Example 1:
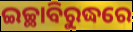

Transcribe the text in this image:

ଇଚ୍ଛାବିରୁଦ୍ଧରେ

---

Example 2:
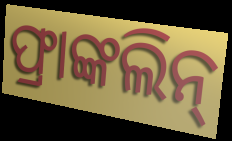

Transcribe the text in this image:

ଫ୍ରାଙ୍କଲିନ୍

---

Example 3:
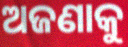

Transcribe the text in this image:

ଅଜଣାକୁ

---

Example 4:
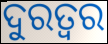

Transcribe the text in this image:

ଦୁରତ୍ଵର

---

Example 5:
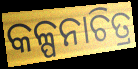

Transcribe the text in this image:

କଳ୍ପନାଚିତ୍ର